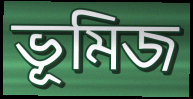
ভূমিজ